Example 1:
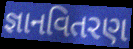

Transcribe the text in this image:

જ્ઞાનવિતરણ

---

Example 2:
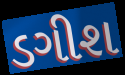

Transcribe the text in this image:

ડગીશ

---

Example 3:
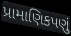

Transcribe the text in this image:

પ્રામાણિકપણું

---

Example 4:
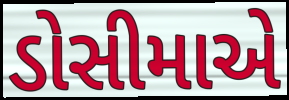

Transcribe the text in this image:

ડોસીમાએ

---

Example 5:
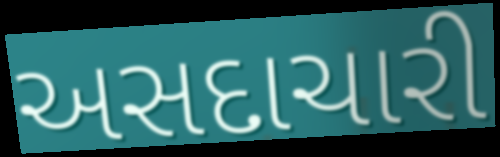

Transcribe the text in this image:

અસદાચારી